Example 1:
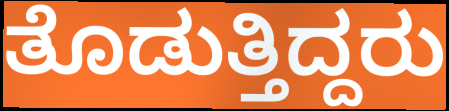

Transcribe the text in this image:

ತೊಡುತ್ತಿದ್ದರು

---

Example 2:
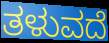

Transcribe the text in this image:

ತಳುವದೆ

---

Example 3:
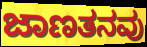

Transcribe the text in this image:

ಜಾಣತನವು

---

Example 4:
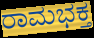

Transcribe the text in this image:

ರಾಮಭಕ್ತ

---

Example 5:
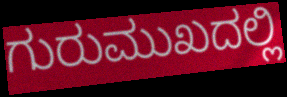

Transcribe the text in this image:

ಗುರುಮುಖದಲ್ಲಿ